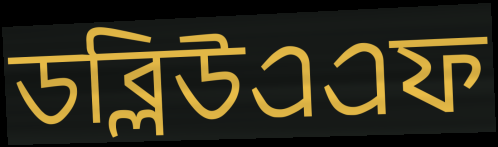
ডব্লিউএএফ